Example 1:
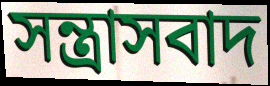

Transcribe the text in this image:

সন্ত্ৰাসবাদ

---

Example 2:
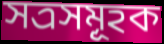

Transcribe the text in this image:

সত্ৰসমূহক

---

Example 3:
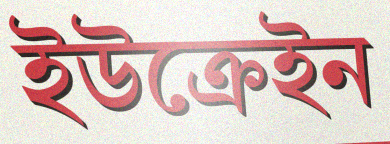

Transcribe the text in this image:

ইউক্ৰেইন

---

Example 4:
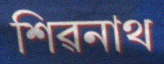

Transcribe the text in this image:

শিৱনাথ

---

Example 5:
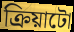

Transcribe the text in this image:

ক্ৰিয়াটো